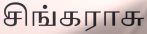
சிங்கராசு